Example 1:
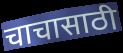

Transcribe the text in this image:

चाचासाठी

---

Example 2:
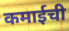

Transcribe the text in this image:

कमाईची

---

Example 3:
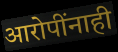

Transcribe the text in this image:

आरोपींनाही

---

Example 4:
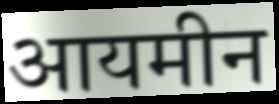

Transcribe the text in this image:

आयमीन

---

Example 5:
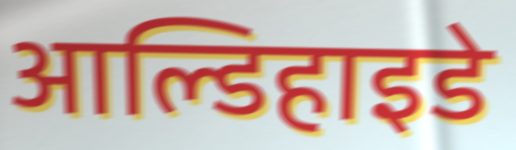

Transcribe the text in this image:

आल्डिहाइडे